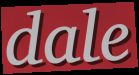
dale